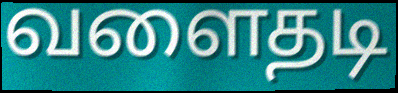
வளைதடி